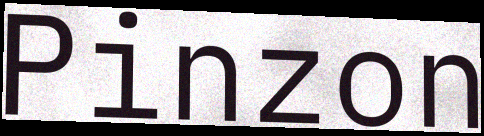
Pinzon